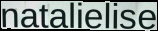
natalielise